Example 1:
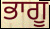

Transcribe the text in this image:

ਭਾਗੂ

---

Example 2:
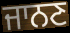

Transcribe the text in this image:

ਜਾਨਣ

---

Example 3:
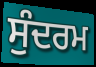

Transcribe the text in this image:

ਸੁੰਦਰਮ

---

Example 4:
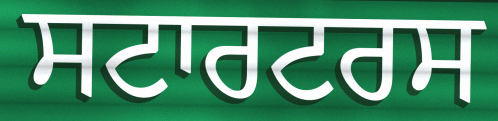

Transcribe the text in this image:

ਸਟਾਰਟਰਸ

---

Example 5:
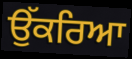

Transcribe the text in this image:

ਉੱਕਰਿਆ